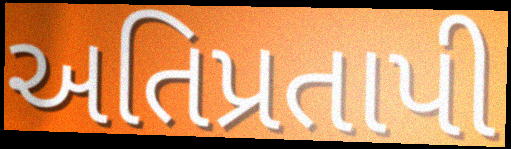
અતિપ્રતાપી